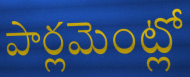
పార్లమెంట్లో